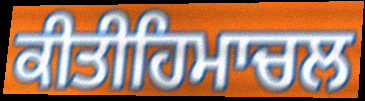
ਕੀਤੀਹਿਮਾਚਲ